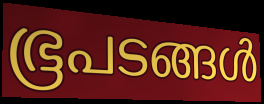
ഭൂപടങ്ങൾ